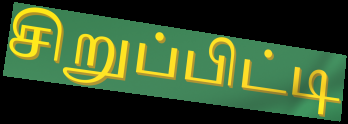
சிறுப்பிட்டி